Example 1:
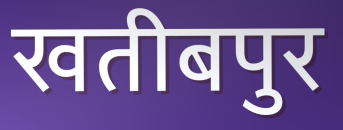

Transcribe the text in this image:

खतीबपुर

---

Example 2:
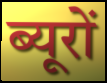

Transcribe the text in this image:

ब्यूरों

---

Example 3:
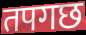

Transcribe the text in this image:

तपगछ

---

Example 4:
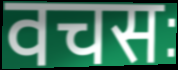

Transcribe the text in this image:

वचसः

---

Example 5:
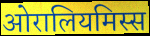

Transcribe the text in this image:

ओरालियमिस्स